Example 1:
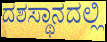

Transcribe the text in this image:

ದಶಸ್ಥಾನದಲ್ಲಿ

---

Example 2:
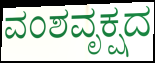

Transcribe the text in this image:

ವಂಶವೃಕ್ಷದ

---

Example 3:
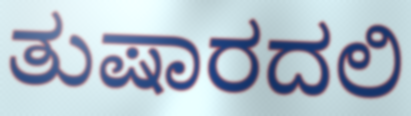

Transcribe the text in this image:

ತುಷಾರದಲಿ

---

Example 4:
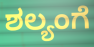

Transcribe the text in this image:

ಶಲ್ಯಂಗೆ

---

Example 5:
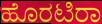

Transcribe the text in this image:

ಹೊರಟಿರಾ